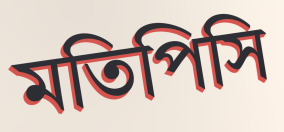
মতিপিসি